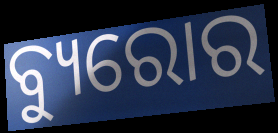
ବ୍ୟୁରୋର